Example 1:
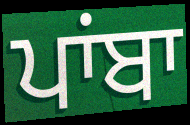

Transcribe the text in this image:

ਪਾਂਬਾ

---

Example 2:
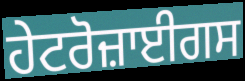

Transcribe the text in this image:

ਹੇਟਰੋਜ਼ਾਈਗਸ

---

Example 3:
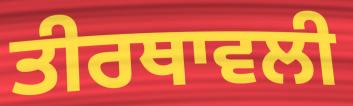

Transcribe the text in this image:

ਤੀਰਥਾਵਲੀ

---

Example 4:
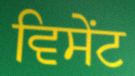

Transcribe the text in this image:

ਵਿਸੇਂਟ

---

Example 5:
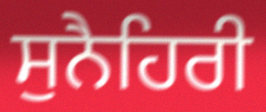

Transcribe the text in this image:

ਸੁਨੈਹਿਰੀ